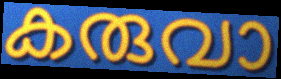
കരുവാ